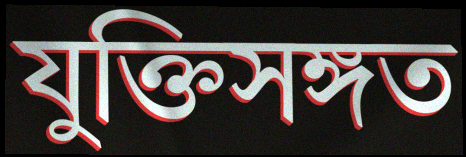
যুক্তিসঙ্গত